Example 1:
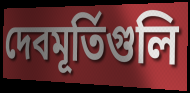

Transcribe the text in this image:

দেবমূর্তিগুলি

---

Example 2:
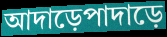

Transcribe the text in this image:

আদাড়েপাদাড়ে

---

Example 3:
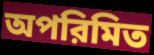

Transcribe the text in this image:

অপরিমিত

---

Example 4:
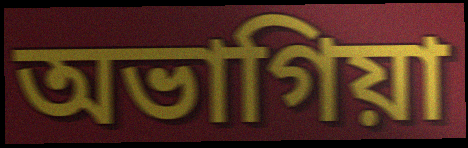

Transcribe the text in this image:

অভাগিয়া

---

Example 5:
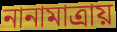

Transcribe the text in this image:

নানামাত্রায়